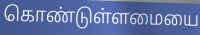
கொண்டுள்ளமையை